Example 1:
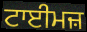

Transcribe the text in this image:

ਟਾਈਮਜ਼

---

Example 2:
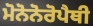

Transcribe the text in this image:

ਮੋਨੋਨੋਰੋਪੈਥੀ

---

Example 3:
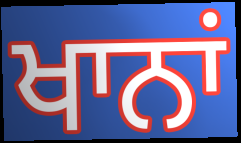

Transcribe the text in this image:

ਖਾਨਾਂ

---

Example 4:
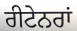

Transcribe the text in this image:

ਰੀਟੇਨਰਾਂ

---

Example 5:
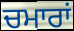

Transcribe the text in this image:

ਚਮਾਰਾਂ